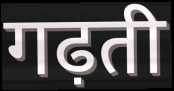
गढ़ती